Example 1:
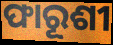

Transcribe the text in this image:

ଫାରୂଶୀ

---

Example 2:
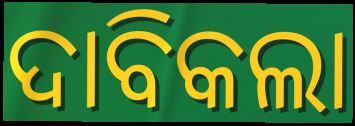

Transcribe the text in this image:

ଦାବିକଲା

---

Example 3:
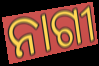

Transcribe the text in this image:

ନାଗୀ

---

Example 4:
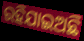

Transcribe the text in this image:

ରହିଯାଇଅଛି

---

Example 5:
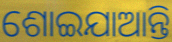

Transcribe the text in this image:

ଶୋଇଯାଆନ୍ତି